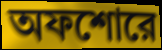
অফশোরে